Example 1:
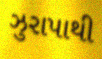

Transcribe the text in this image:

ઝુરાપાથી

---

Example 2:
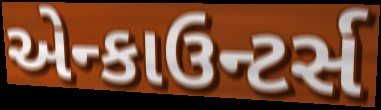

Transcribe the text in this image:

એન્કાઉન્ટર્સ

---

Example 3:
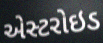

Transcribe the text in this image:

એસ્ટરોઇડ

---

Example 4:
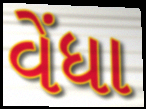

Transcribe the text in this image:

વેંધા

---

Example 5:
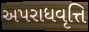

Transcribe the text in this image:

અપરાધવૃત્તિ